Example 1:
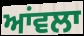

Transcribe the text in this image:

ਆਂਵਲਾ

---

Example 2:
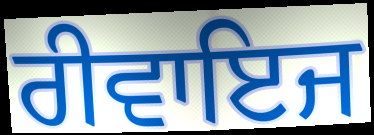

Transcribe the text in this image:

ਰੀਵਾਇਜ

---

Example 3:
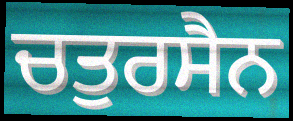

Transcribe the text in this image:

ਚਤੁਰਸੈਨ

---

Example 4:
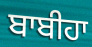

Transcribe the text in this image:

ਬਾਬੀਹਾ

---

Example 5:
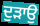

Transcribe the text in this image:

ਦੁੜਾਉ